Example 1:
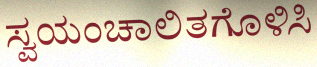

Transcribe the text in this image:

ಸ್ವಯಂಚಾಲಿತಗೊಳಿಸಿ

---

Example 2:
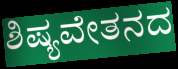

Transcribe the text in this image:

ಶಿಷ್ಯವೇತನದ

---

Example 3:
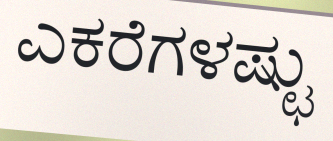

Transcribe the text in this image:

ಎಕರೆಗಳಷ್ಟು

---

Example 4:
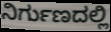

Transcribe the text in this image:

ನಿರ್ಗುಣದಲ್ಲಿ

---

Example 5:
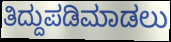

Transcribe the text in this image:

ತಿದ್ದುಪಡಿಮಾಡಲು